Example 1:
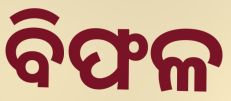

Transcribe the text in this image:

ବିଫଳ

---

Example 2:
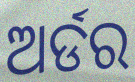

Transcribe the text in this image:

ଅର୍ଡର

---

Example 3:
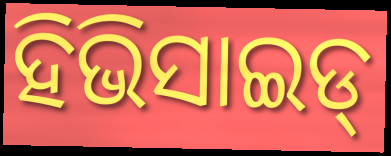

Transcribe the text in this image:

ହିଭିସାଇଡ୍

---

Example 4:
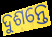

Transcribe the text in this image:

ଦୁଶନ୍ତେ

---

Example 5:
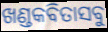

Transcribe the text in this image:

ଖଣ୍ଡକବିତାସବୁ